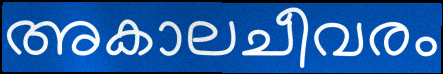
അകാലചീവരം